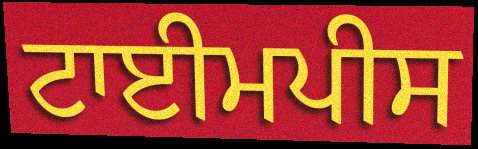
ਟਾਈਮਪੀਸ